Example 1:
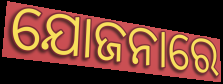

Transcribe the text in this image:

ଯୋଜନାରେ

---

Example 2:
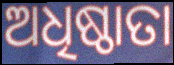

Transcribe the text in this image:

ଅଧିଷ୍ଠାତା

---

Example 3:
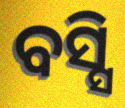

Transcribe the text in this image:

ବସ୍ସି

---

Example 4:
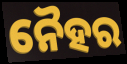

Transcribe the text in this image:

ନୈହର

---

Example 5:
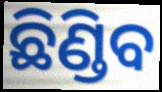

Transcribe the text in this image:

ଛିଣ୍ଡିବ